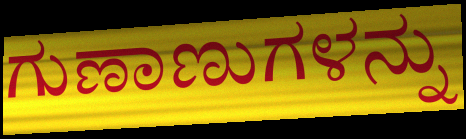
ಗುಣಾಣುಗಳನ್ನು